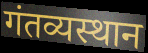
गंतव्यस्थान